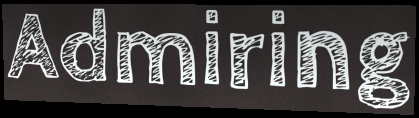
Admiring